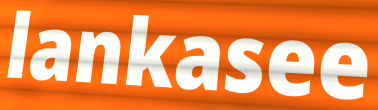
lankasee